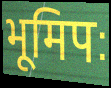
भूमिपः